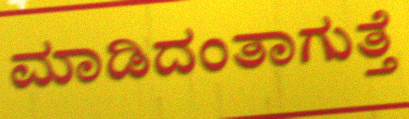
ಮಾಡಿದಂತಾಗುತ್ತೆ